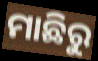
ମାଛିରୁ